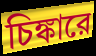
চিঙ্কারে